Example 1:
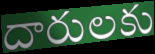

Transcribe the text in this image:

దారులకు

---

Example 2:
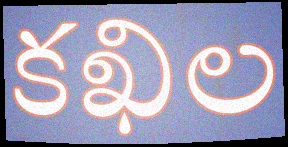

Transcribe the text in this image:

కఖిల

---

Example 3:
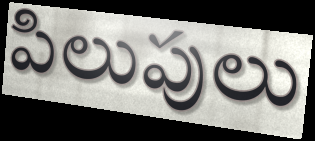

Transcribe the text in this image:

పిలుపులు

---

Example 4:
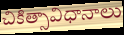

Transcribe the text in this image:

చికిత్సావిధానాలు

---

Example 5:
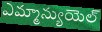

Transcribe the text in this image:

ఎమ్మాన్యుయెల్